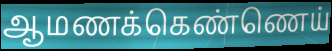
ஆமணக்கெண்ணெய்